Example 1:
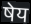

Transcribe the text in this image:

षेय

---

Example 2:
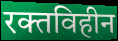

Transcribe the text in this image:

रक्तविहीन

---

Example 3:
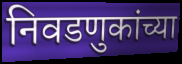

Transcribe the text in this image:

निवडणुकांच्या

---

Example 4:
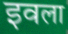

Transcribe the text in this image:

इवला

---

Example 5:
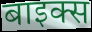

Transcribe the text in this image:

बाइक्स